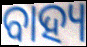
ବାହ୍ୟ